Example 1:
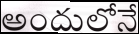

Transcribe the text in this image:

అందులోనే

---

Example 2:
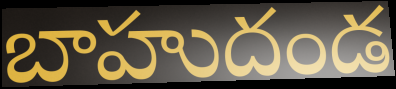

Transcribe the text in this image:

బాహుదండ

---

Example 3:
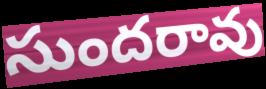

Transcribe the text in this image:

సుందరావు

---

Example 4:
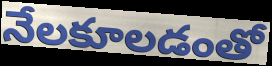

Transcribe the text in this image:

నేలకూలడంతో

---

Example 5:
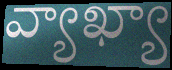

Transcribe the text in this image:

వ్యాఖ్యా